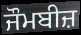
ਜੌਮਬੀਜ਼